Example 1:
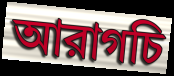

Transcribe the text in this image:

আরাগচি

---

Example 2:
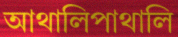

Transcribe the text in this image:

আথালিপাথালি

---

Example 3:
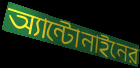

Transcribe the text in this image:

অ্যান্টোনাইনের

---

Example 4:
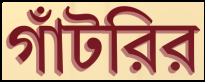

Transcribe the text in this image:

গাঁটরির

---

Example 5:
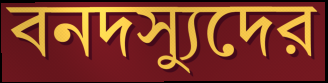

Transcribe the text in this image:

বনদস্যুদের